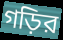
গড়ির